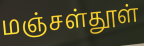
மஞ்சள்தூள்